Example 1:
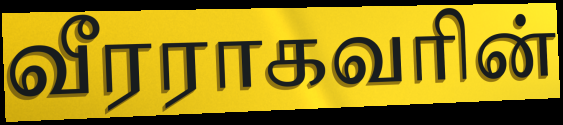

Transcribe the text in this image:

வீரராகவரின்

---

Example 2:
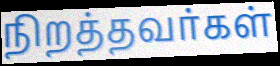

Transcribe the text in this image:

நிறத்தவர்கள்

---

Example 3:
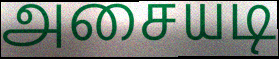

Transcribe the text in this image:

அசையடி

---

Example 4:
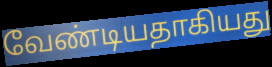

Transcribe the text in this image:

வேண்டியதாகியது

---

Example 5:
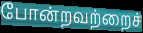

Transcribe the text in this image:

போன்றவற்றைச்